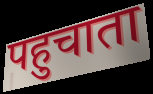
पहुचाता